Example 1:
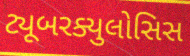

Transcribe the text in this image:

ટ્યૂબરક્યુલોસિસ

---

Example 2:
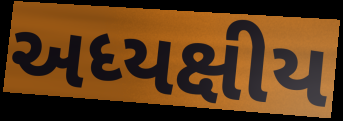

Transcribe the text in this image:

અધ્યક્ષીય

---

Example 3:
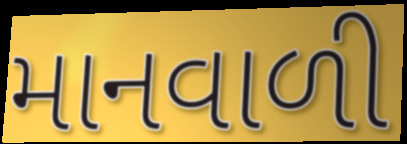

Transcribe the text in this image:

માનવાળી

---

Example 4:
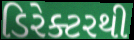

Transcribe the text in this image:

ડિરેક્ટરથી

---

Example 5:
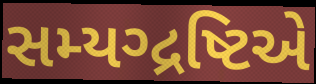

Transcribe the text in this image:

સમ્યગ્દ્રષ્ટિએ